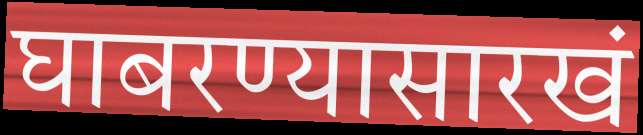
घाबरण्यासारखं